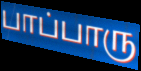
பாப்பாரு